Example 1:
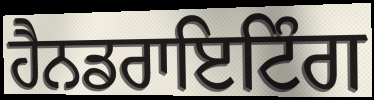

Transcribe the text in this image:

ਹੈਨਡਰਾਇਟਿੰਗ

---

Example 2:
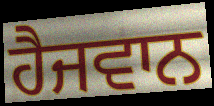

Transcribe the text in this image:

ਹੈਜਵਾਨ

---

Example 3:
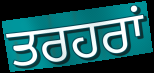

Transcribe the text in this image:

ਤਰਹਰਾਂ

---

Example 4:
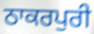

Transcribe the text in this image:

ਠਾਕਰਪੁਰੀ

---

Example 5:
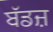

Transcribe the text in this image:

ਬੱਡਜ਼